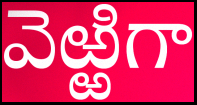
వెఱ్ఱిగా